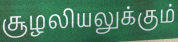
சூழலியலுக்கும்